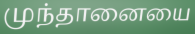
முந்தானையை